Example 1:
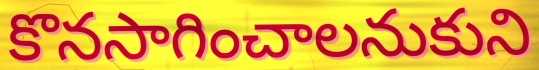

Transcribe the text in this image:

కొనసాగించాలనుకుని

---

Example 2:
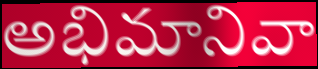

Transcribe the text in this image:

అభిమానివా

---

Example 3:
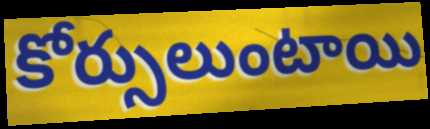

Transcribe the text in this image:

కోర్సులుంటాయి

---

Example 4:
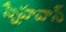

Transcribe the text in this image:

స్నేహవాన్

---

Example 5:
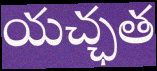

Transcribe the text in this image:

యచ్ఛత